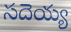
సదెయ్య